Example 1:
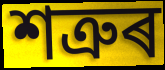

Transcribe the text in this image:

শত্ৰুৰ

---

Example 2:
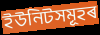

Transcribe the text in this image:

ইউনিটসমূহৰ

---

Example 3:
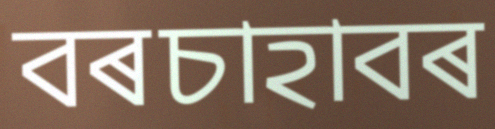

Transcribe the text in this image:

বৰচাহাবৰ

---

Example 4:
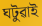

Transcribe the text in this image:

ঘটুৱাই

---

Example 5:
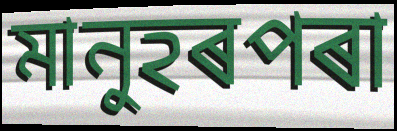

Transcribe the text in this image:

মানুহৰপৰা